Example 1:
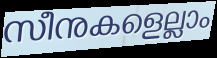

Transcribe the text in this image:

സീനുകളെല്ലാം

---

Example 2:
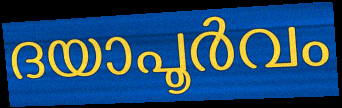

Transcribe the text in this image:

ദയാപൂർവം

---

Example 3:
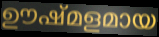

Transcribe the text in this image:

ഊഷ്‌മളമായ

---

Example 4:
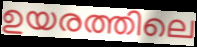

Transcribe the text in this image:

ഉയരത്തിലെ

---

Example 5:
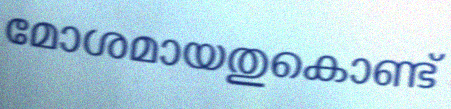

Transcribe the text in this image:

മോശമായതുകൊണ്ട്